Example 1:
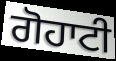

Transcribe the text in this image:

ਗੋਹਾਟੀ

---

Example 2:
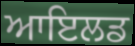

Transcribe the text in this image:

ਆਇਲਡ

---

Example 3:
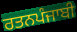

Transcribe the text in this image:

ਰਤਨਪੰਜਾਬੀ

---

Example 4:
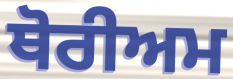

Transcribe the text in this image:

ਥੋਰੀਅਮ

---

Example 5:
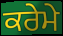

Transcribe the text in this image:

ਕਰੇਮੇ